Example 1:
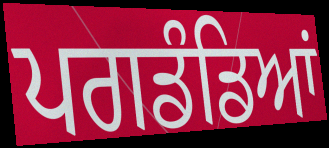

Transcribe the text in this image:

ਪਗਡੰਡਿਆਂ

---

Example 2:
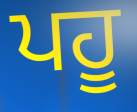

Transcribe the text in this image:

ਪਹੂ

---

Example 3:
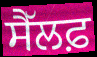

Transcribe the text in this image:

ਸੈੱਲਫ਼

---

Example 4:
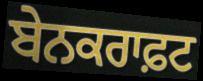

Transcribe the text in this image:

ਬੇਨਕਰਾਫ਼ਟ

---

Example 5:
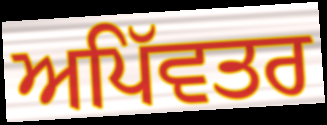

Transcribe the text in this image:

ਅਪਿੱਵਤਰ